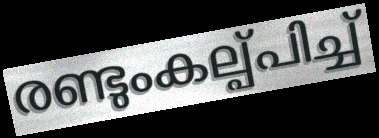
രണ്ടുംകല്പ്പിച്ച്